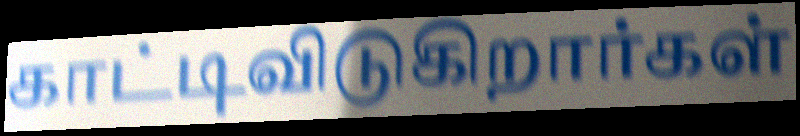
காட்டிவிடுகிறார்கள்